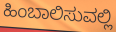
ಹಿಂಬಾಲಿಸುವಲ್ಲಿ